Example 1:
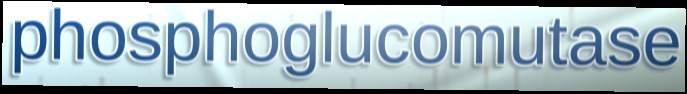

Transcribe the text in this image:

phosphoglucomutase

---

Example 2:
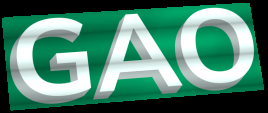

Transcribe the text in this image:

GAO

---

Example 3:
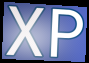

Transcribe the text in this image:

XP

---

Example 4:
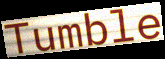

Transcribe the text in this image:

Tumble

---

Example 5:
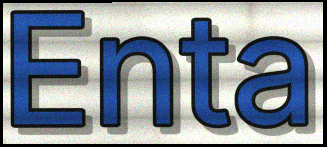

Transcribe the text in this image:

Enta